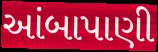
આંબાપાણી